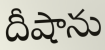
దీషాను